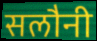
सलौनी